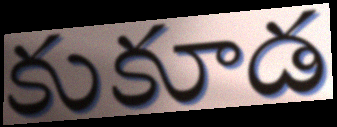
కుకూడ